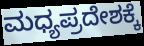
ಮಧ್ಯಪ್ರದೇಶಕ್ಕೆ